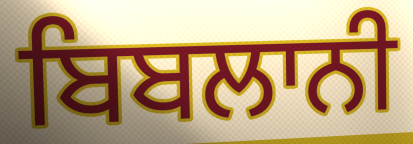
ਬਿਬਲਾਨੀ